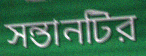
সন্তানটির